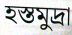
হস্তমুদ্রা